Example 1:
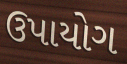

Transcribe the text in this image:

ઉપાયોગ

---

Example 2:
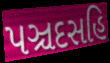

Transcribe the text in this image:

પઞ્ચદસહિ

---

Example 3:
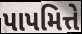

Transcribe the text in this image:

પાપમિત્તે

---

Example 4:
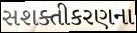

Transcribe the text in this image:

સશક્તીકરણના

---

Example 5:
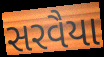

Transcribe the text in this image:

સરવૈયા